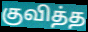
குவித்த